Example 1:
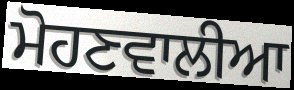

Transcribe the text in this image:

ਮੋਹਣਵਾਲੀਆ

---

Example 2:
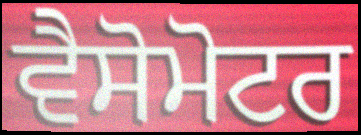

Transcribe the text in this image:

ਵੈਸੋਮੋਟਰ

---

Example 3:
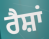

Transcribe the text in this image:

ਰੈਸ਼ਾਂ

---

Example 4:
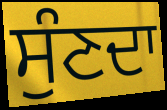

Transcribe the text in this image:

ਸੁੰਣਦਾ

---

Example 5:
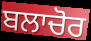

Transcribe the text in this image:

ਬਲਾਚੋਰ